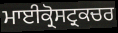
ਮਾਈਕ੍ਰੋਸਟ੍ਰਕਚਰ